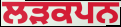
ਲੜਕਪਨ